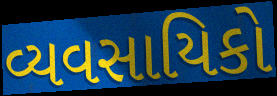
વ્યવસાયિકો